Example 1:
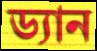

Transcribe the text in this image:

ড্যান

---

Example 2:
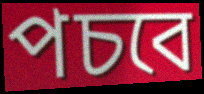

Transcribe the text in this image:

পচবে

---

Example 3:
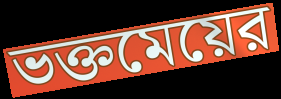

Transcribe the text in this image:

ভক্তমেয়ের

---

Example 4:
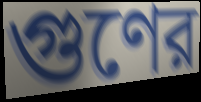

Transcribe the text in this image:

গুণের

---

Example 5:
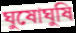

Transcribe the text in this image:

ঘুষোঘুষি